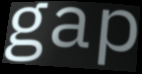
gap